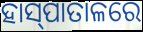
ହାସ୍‍ପାତାଳରେ